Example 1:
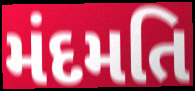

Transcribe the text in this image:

મંદમતિ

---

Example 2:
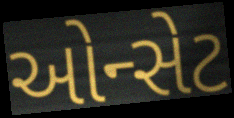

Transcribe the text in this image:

ઓન્સેટ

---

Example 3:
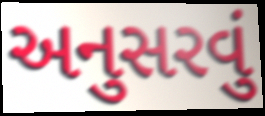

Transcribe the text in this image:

અનુસરવું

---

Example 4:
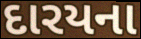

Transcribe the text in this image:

દારયના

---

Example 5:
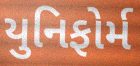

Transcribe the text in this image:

યુનિફોર્મ